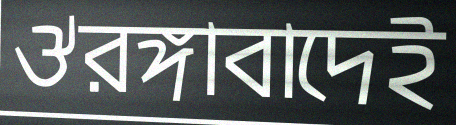
ঔরঙ্গাবাদেই